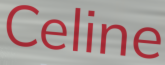
Celine